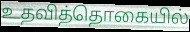
உதவித்தொகையில்